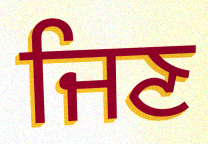
ਜਿਣ